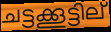
ചട്ടക്കൂട്ടില്